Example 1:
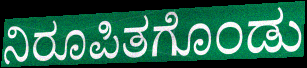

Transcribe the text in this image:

ನಿರೂಪಿತಗೊಂಡು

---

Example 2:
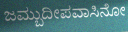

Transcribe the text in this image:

ಜಮ್ಬುದೀಪವಾಸಿನೋ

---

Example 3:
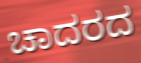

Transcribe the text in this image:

ಚಾದರದ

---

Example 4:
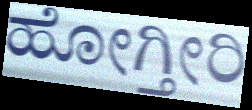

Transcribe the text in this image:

ಹೋಗ್ತೀರಿ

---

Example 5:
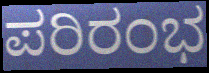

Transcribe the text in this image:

ಪರಿರಂಭ